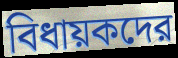
বিধায়কদের